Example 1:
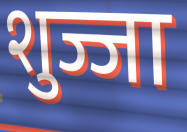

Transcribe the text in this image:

शुज्जा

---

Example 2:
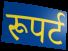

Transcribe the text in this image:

रूपर्ट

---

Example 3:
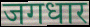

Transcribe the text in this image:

जगधार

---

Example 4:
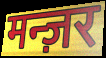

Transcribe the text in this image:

मन्ज़र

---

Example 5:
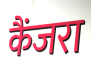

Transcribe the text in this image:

कैंजरा